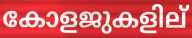
കോളജുകളില്